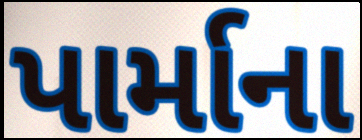
પાર્માના